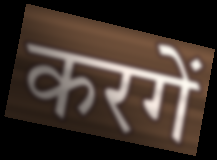
करगें